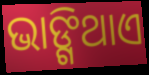
ଭାଙ୍ଗିଥାଏ